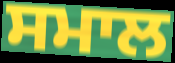
ਸਮਾਲ